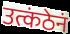
उत्कंठेनं